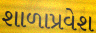
શાળાપ્રવેશ